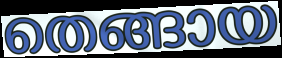
തെങ്ങായ